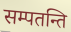
सम्पतन्ति